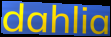
dahlia